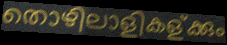
തൊഴിലാളികള്ക്കും